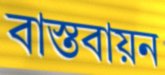
বাস্তবায়ন